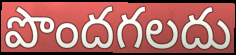
పొందగలదు